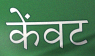
केंवट